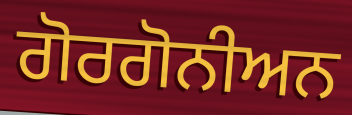
ਗੋਰਗੋਨੀਅਨ